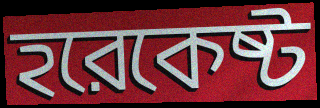
হরেকেষ্ট